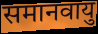
समानवायु